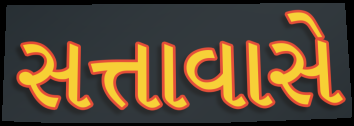
સત્તાવાસે